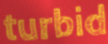
turbid